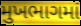
મુખભાગમાં